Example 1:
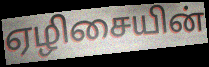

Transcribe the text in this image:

ஏழிசையின்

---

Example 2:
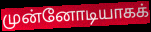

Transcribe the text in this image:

முன்னோடியாகக்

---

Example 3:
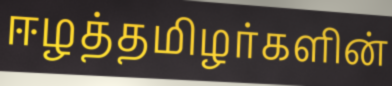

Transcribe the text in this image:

ஈழத்தமிழர்களின்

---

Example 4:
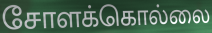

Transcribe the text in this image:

சோளக்கொல்லை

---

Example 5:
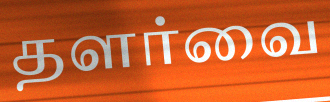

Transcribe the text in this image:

தளர்வை